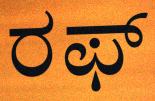
ರಫ್